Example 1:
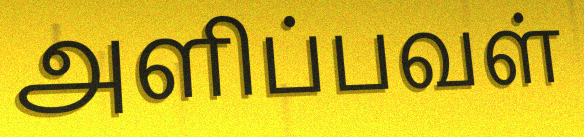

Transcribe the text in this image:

அளிப்பவள்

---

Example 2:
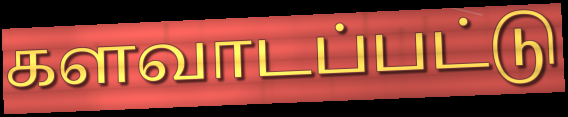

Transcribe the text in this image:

களவாடப்பட்டு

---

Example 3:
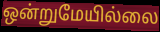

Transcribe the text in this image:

ஒன்றுமேயில்லை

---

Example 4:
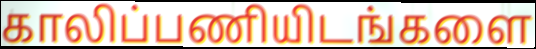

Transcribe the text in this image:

காலிப்பணியிடங்களை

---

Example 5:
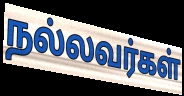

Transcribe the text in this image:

நல்லவர்கள்